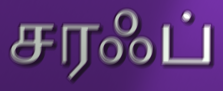
சரஃப்